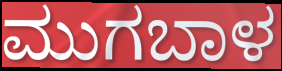
ಮುಗಬಾಳ